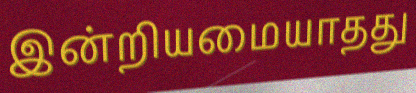
இன்றியமையாதது